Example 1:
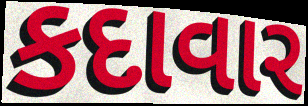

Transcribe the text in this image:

કદાવાર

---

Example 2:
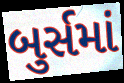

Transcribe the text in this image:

બુર્સમાં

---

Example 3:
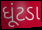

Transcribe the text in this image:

ધૂંટડા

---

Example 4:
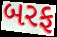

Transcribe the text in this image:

બરફ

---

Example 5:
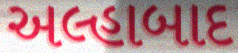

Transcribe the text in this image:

અલ્હાબાદ